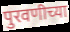
पुरवणीच्या